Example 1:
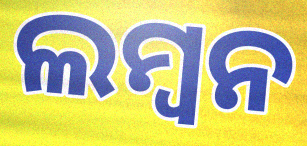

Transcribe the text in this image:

ଲମ୍ବନ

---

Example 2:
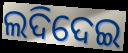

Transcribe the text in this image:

ଲଦିଦେଇ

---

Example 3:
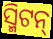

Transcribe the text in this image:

ସ୍ମିଟନ୍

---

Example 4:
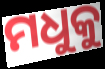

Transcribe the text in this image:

ମଧୁକୁ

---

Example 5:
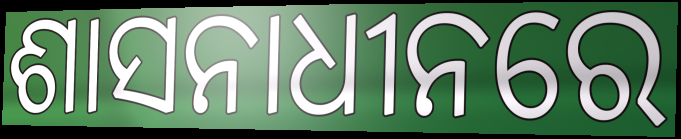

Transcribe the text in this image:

ଶାସନାଧୀନରେ